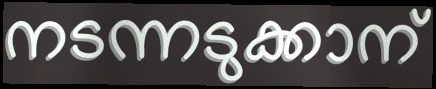
നടന്നടുക്കാന്